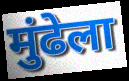
मुंढेला